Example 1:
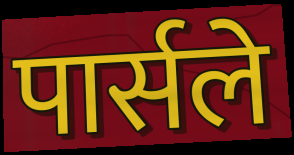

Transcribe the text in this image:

पार्सले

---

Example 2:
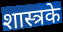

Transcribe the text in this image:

शास्त्रके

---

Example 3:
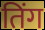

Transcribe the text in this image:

तिंग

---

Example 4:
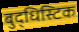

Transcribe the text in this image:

बुद्धिस्टिक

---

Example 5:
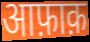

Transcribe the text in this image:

आफ़ाक़